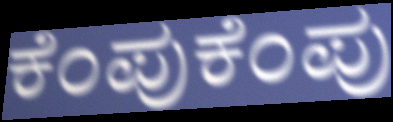
ಕೆಂಪುಕೆಂಪು